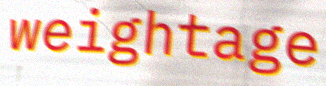
weightage